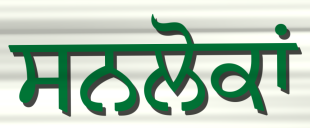
ਸਨਲੋਕਾਂ